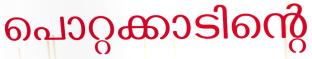
പൊറ്റക്കാടിന്റെ